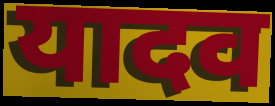
यादव